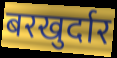
बरखुर्दार